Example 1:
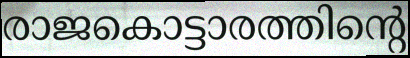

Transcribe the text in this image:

രാജകൊട്ടാരത്തിന്റെ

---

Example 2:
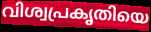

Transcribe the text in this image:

വിശ്വപ്രകൃതിയെ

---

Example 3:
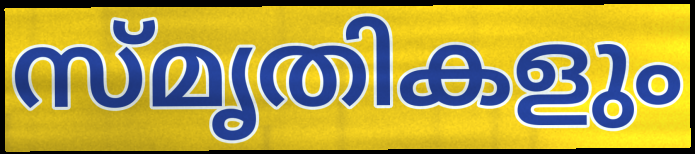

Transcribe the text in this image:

സ്മൃതികളും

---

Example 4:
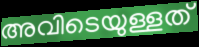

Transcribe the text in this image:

അവിടെയുള്ളത്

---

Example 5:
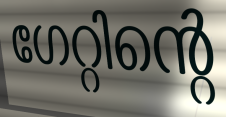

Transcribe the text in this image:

ഗേറ്റിന്റെ